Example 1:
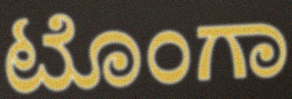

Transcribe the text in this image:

ಟೊಂಗಾ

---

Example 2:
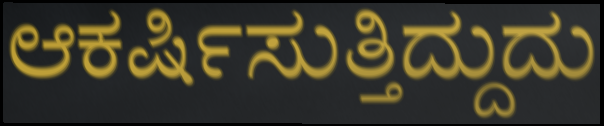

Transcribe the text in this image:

ಆಕರ್ಷಿಸುತ್ತಿದ್ದುದು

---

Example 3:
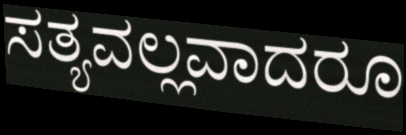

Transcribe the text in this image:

ಸತ್ಯವಲ್ಲವಾದರೂ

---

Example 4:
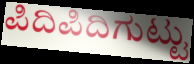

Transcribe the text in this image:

ಪಿದಿಪಿದಿಗುಟ್ಟು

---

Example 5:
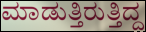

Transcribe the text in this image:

ಮಾಡುತ್ತಿರುತ್ತಿದ್ದ